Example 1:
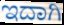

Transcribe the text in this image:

ಇದಾಗಿ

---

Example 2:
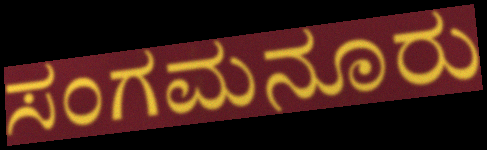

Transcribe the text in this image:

ಸಂಗಮನೂರು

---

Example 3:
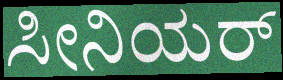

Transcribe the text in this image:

ಸೀನಿಯರ್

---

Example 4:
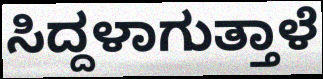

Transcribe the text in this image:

ಸಿದ್ದಳಾಗುತ್ತಾಳೆ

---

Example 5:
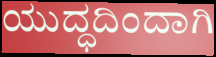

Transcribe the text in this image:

ಯುದ್ಧದಿಂದಾಗಿ